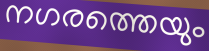
നഗരത്തെയും